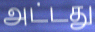
அட்டது